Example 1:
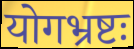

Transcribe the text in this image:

योगभ्रष्टः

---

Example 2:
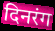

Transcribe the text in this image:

दिनरंग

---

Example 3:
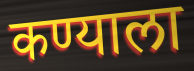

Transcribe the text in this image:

कण्याला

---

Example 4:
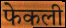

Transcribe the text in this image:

फेकली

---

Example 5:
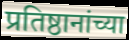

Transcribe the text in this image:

प्रतिष्ठानांच्या